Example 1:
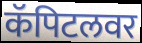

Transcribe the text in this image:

कॅपिटलवर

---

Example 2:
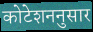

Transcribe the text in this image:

कोटेशननुसार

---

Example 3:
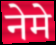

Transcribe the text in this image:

नेमे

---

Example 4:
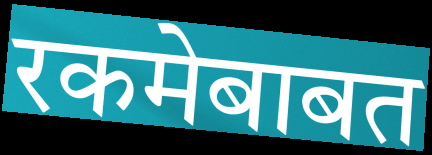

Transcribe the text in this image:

रकमेबाबत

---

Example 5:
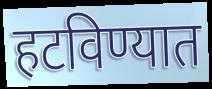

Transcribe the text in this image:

हटविण्यात